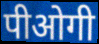
पीओगी